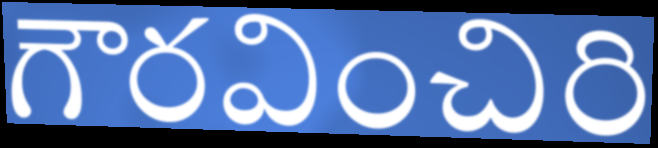
గౌరవించిరి